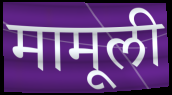
मामूली